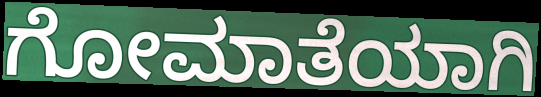
ಗೋಮಾತೆಯಾಗಿ